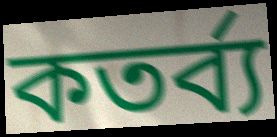
কতর্ব্য